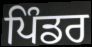
ਪਿੰਡਰ